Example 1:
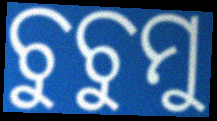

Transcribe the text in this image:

ଚୁଚୁମୁ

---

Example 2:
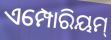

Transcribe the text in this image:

ଏମ୍ପୋରିୟମ୍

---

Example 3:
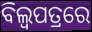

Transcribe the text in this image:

ବିଲ୍ଵପତ୍ରରେ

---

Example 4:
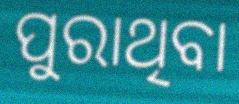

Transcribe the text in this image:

ପୁରାଥିବା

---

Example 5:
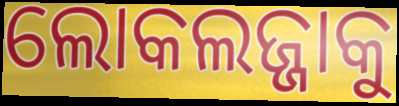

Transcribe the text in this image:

ଲୋକଲଜ୍ଜାକୁ